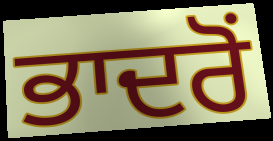
ਭਾਦਰੋਂ